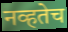
नव्हतेच